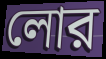
লোর